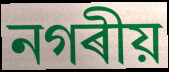
নগৰীয়